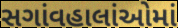
સગાંવહાલાંઓમાં